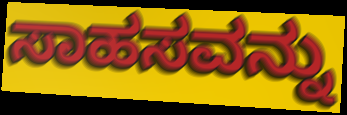
ಸಾಹಸವನ್ನು